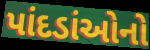
પાંદડાંઓનો